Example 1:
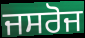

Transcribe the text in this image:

ਜਸਰੋਜ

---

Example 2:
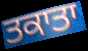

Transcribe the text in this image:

ਤਕਾਤਾ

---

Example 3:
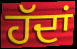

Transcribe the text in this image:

ਹੱਦਾਂ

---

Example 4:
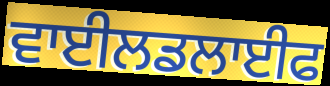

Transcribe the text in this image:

ਵਾਈਲਡਲਾਈਫ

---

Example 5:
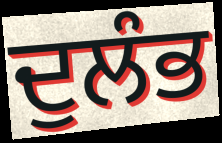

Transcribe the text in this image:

ਦੁਲੰਭ